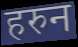
हरुन